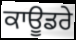
ਕਾਊਡਰੇ